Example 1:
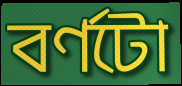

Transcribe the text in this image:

বৰ্ণটো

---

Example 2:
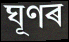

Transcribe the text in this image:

ঘূণৰ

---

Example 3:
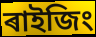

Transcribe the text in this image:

ৰাইজিং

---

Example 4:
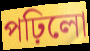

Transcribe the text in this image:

পঢ়িলো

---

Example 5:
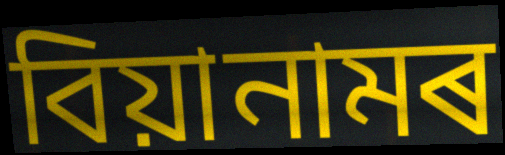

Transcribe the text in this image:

বিয়ানামৰ